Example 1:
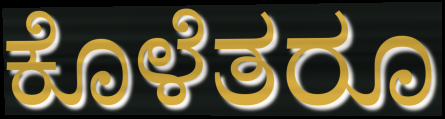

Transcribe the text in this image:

ಕೊಳೆತರೂ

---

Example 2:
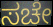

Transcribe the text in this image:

ಸಚೇ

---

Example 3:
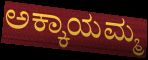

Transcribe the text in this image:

ಅಕ್ಕಾಯಮ್ಮ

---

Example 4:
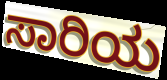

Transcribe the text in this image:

ಸಾರಿಯ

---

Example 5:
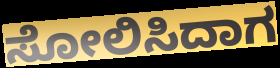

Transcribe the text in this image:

ಸೋಲಿಸಿದಾಗ